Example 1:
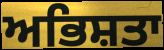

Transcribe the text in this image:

ਅਭਿਸ਼ਤਾ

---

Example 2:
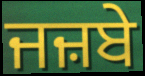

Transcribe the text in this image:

ਜਜ਼ਬੇ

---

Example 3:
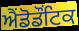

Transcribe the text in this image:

ਐਂਡੋਡੌਂਟਿਕ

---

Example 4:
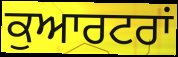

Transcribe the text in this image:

ਕੁਆਰਟਰਾਂ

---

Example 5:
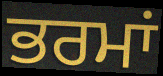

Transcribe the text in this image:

ਭਰਮਾਂ